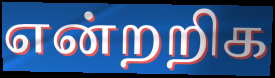
என்றறிக